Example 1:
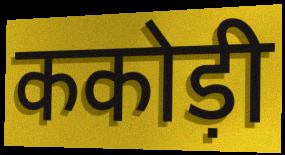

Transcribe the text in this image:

ककोड़ी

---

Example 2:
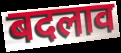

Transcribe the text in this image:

बदलाव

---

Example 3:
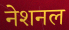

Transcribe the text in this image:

नेशनल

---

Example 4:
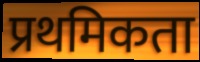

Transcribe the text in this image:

प्रथमिकता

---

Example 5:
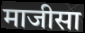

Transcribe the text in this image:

माजीसा